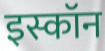
इस्‍कॉन